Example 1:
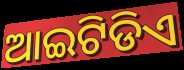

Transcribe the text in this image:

ଆଇଟିଡିଏ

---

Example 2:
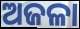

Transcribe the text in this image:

ଅଜଳା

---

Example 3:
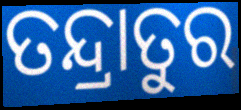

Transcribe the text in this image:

ତନ୍ଦ୍ରାତୁର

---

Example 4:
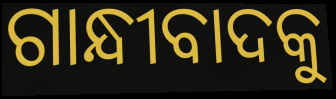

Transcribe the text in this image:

ଗାନ୍ଧୀବାଦକୁ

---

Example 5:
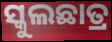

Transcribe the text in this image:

ସ୍କୁଲଛାତ୍ର